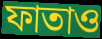
ফাতাও